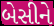
બેસીને